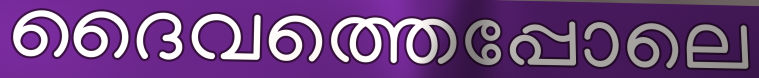
ദൈവത്തെപ്പോലെ